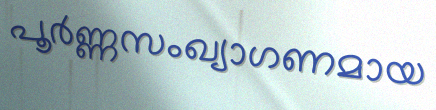
പൂർണ്ണസംഖ്യാഗണമായ